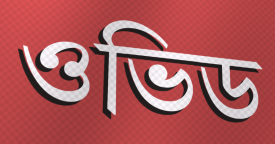
ওভিড